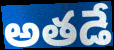
అతడే